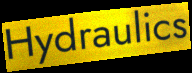
Hydraulics